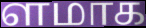
ளமாக